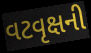
વટવૃક્ષની